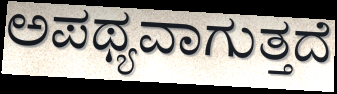
ಅಪಥ್ಯವಾಗುತ್ತದೆ